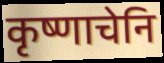
कृष्णाचेनि